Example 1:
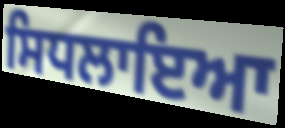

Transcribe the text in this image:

ਸਿਧਲਾਇਆ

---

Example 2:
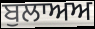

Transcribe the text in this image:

ਬੁਲਾਅਅ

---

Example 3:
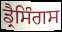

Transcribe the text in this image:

ਡ੍ਰੈਸਿੰਗਸ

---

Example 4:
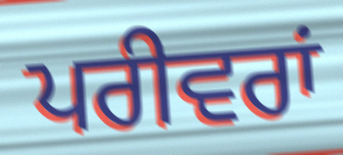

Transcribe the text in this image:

ਪਰੀਵਰਾਂ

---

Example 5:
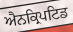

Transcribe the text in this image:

ਐਨਕ੍ਰਿਪਟਿਡ